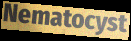
Nematocyst